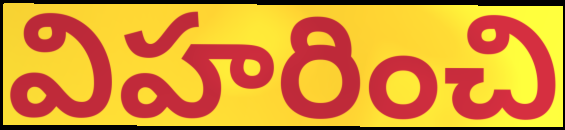
విహరించి